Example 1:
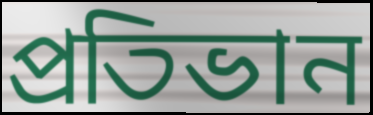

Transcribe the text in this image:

প্রতিভান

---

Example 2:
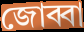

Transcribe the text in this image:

জোব্বা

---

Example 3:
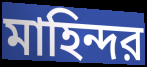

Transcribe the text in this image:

মাহিন্দর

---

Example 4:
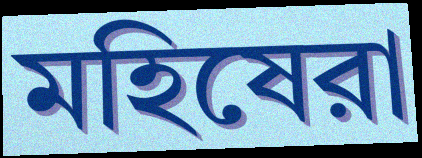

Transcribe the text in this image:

মহিষেরা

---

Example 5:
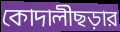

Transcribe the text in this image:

কোদালীছড়ার